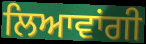
ਲਿਆਵਾਂਗੀ